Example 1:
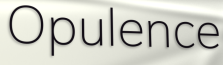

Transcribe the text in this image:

Opulence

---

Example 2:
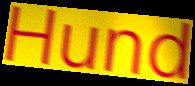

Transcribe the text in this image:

Hund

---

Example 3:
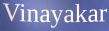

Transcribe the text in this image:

Vinayakar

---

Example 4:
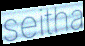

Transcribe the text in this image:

seitha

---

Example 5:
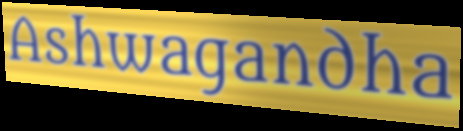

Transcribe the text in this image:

Ashwagandha